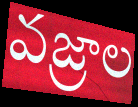
వజ్రాల